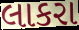
લાકરા